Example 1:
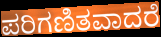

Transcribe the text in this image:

ಪರಿಗಣಿತವಾದರೆ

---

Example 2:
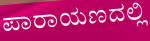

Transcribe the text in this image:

ಪಾರಾಯಣದಲ್ಲಿ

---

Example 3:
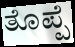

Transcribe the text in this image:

ತೊಪ್ಪೆ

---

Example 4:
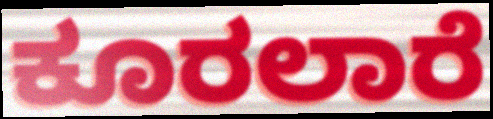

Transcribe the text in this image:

ಕೂರಲಾರೆ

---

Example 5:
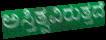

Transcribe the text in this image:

ಅಸ್ತಿತ್ವವಿರುತ್ತದೆ